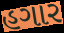
હગાર